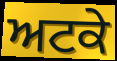
ਅਟਕੇ